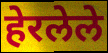
हेरलेले